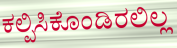
ಕಲ್ಪಿಸಿಕೊಂಡಿರಲಿಲ್ಲ